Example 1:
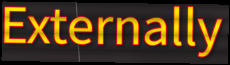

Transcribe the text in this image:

Externally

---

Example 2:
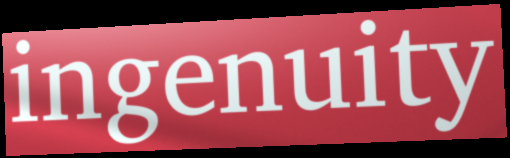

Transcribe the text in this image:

ingenuity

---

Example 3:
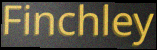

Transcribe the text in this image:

Finchley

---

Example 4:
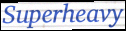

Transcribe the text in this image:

Superheavy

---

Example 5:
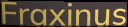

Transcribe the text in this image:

Fraxinus